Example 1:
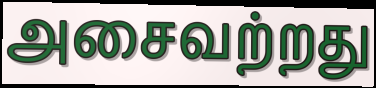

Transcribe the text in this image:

அசைவற்றது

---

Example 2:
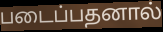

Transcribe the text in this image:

படைப்பதனால்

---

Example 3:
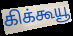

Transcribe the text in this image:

கிக்கூயூ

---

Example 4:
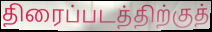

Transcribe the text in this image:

திரைப்படத்திற்குத்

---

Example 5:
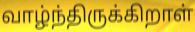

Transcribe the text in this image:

வாழ்ந்திருக்கிறாள்